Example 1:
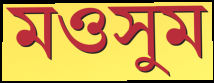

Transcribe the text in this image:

মওসুম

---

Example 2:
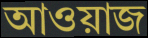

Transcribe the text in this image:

আওয়াজ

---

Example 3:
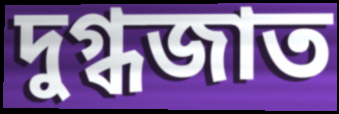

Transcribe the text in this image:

দুগ্ধজাত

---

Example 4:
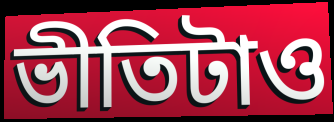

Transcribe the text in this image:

ভীতিটাও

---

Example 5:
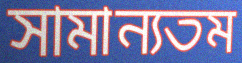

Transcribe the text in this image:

সামান্যতম